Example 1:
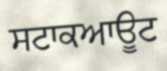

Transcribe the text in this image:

ਸਟਾਕਆਊਟ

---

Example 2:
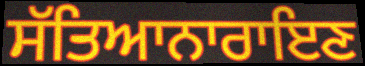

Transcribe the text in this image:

ਸੱਤਿਆਨਾਰਾਇਣ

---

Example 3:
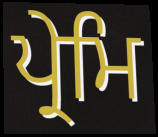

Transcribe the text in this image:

ਪ੍ਰੇਮਿ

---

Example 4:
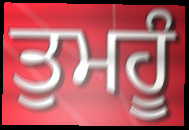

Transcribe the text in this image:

ਤੁਮਹੂੰ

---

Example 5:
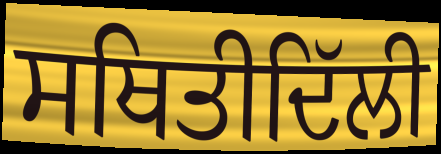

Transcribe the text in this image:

ਸਥਿਤੀਦਿੱਲੀ